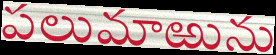
పలుమాఱును